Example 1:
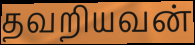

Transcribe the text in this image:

தவறியவன்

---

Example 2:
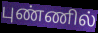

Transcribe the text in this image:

புண்ணில்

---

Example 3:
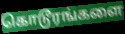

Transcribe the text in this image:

கொடூரங்களை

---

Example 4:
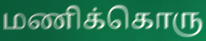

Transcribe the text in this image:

மணிக்கொரு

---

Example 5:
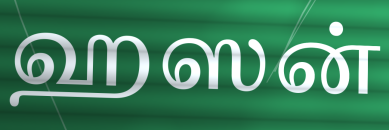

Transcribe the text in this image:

ஹஸன்